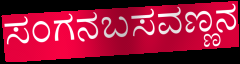
ಸಂಗನಬಸವಣ್ಣನ